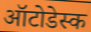
ऑटोडेस्क